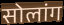
सोलांग